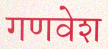
गणवेश